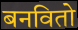
बनवितो